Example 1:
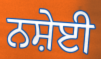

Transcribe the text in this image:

ਨਸ਼ੇਈ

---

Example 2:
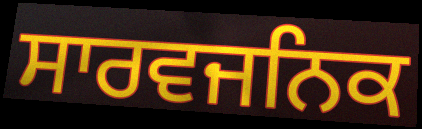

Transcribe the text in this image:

ਸਾਰਵਜਨਿਕ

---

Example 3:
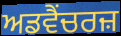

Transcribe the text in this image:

ਅਡਵੈਂਚਰਜ਼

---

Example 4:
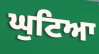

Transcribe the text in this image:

ਘੁਟਿਆ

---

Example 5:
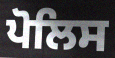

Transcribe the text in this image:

ਪੋਲਿਸ